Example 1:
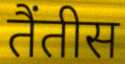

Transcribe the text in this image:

तैंतीस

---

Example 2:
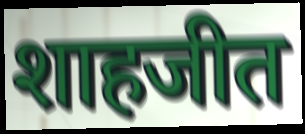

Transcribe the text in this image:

शाहजीत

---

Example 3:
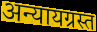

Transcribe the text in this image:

अन्यायग्रस्त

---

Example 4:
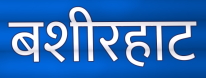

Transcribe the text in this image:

बशीरहाट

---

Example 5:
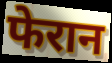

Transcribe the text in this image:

फेरान